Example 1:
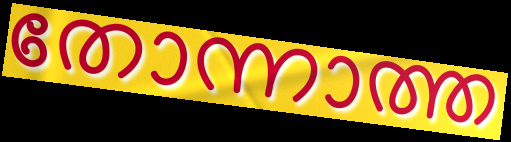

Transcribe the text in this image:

തോന്നാത്ത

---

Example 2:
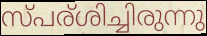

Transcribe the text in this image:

സ്പര്ശിച്ചിരുന്നു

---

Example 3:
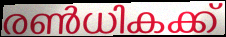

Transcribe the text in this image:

രൺധികക്ക്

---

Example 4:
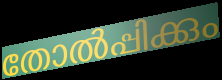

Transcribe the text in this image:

തോൽപ്പിക്കും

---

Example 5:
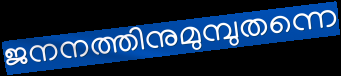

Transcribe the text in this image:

ജനനത്തിനുമുമ്പുതന്നെ